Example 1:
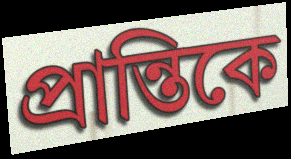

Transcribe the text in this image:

প্রান্তিকে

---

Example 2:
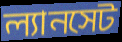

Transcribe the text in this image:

ল্যানসেট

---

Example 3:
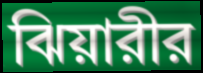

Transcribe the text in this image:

ঝিয়ারীর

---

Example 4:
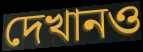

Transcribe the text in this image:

দেখানও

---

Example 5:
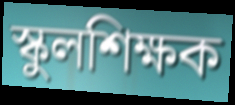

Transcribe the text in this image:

স্কুলশিক্ষক